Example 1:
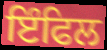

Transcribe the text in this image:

ਇੰਫਿਲ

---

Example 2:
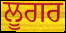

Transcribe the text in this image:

ਲੂਗਰ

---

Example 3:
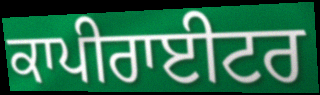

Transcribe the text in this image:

ਕਾਪੀਰਾਈਟਰ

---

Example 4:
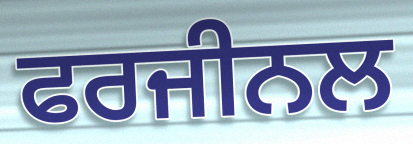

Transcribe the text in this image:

ਫਰਜੀਨਲ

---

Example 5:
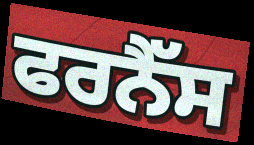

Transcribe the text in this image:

ਫਰਨੈੱਸ